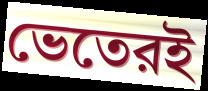
ভেতেরই